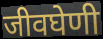
जीवघेणी